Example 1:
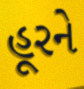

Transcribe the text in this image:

હૂરને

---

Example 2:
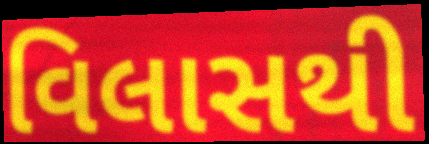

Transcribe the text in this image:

વિલાસથી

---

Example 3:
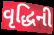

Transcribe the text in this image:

વૃદ્ધિની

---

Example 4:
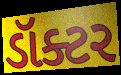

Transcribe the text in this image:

ડૉક્ટર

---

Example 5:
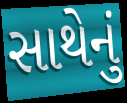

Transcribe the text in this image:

સાથેનું